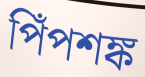
পিঁপশঙ্ক